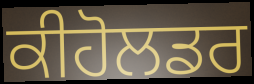
ਕੀਹੋਲਡਰ